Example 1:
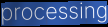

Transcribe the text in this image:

processing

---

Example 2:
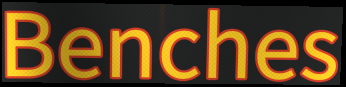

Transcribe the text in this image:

Benches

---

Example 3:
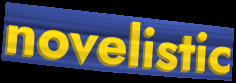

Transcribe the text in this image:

novelistic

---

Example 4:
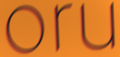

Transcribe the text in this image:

oru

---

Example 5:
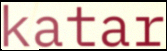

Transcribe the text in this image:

katar